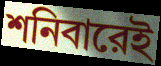
শনিবারেই